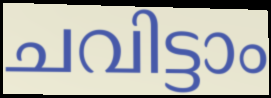
ചവിട്ടാം